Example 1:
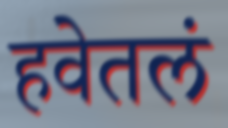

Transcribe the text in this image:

हवेतलं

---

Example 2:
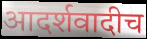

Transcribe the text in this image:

आदर्शवादीच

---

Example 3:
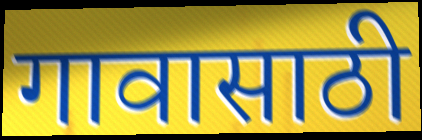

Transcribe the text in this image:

गावासाठी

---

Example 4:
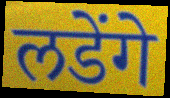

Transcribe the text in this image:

लडेंगे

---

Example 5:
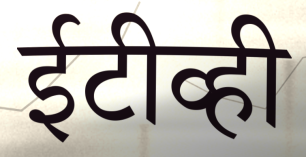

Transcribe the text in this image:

ईटीव्ही